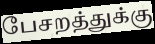
பேசறத்துக்கு